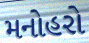
મનોહરો